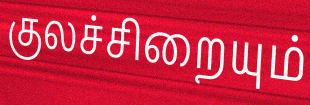
குலச்சிறையும்